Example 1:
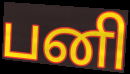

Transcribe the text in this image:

பனி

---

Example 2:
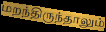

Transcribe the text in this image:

மறந்திருந்தாலும்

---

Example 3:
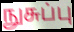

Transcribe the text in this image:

நுசுப்பு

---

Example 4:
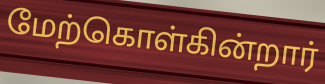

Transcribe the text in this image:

மேற்கொள்கின்றார்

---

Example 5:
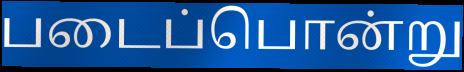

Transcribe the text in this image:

படைப்பொன்று